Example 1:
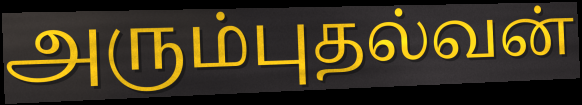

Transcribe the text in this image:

அரும்புதல்வன்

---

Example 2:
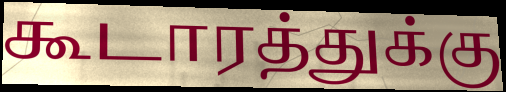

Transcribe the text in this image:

கூடாரத்துக்கு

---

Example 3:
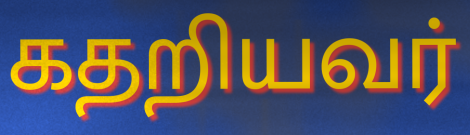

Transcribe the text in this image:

கதறியவர்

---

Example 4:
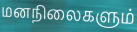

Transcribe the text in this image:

மனநிலைகளும்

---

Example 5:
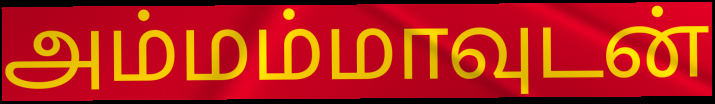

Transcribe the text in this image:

அம்மம்மாவுடன்